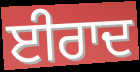
ਈਰਾਦ